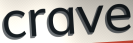
crave